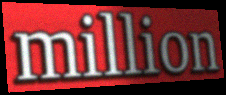
million